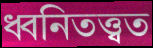
ধ্বনিতত্ত্বত